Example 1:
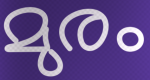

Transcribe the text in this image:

മുരം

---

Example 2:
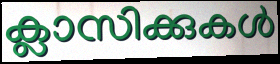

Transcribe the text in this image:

ക്ലാസിക്കുകൾ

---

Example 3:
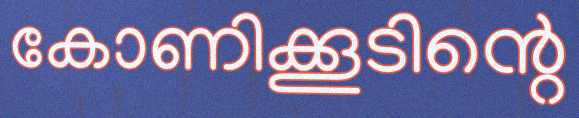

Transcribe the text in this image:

കോണിക്കൂടിന്റെ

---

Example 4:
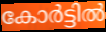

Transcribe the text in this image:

കോർട്ടിൽ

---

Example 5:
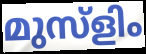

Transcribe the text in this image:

മുസ്ളിം